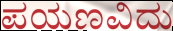
ಪಯಣವಿದು